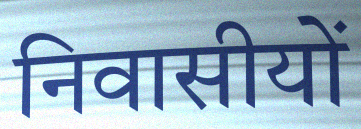
निवासीयों